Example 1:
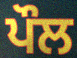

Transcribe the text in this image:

ਪੌਲ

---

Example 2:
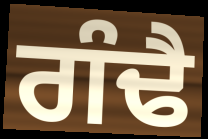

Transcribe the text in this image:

ਗੰਢੈ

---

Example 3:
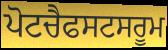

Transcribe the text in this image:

ਪੋਟਚੈਫਸਟਸਰੂਮ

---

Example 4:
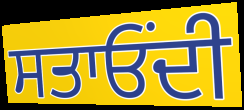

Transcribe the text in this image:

ਸਤਾਓਂਦੀ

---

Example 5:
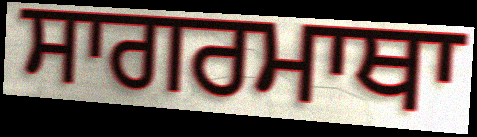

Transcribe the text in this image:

ਸਾਗਰਮਾਥਾ